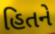
હિતને